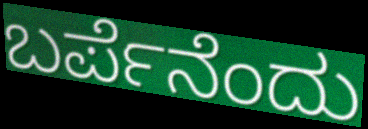
ಬರ್ಪೆನೆಂದು